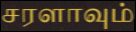
சரளாவும்